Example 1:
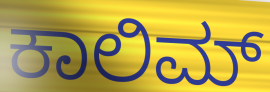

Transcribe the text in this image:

ಕಾಲಿಮ್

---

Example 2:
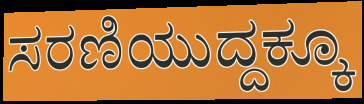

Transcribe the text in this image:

ಸರಣಿಯುದ್ದಕ್ಕೂ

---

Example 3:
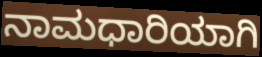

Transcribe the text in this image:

ನಾಮಧಾರಿಯಾಗಿ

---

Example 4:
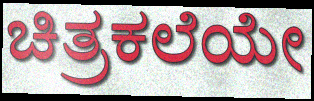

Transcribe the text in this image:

ಚಿತ್ರಕಲೆಯೇ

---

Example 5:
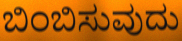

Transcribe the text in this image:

ಬಿಂಬಿಸುವುದು